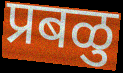
प्रबळु